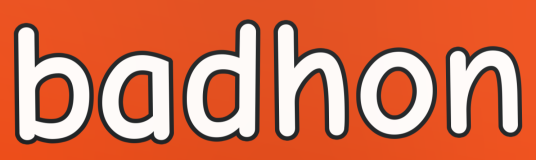
badhon